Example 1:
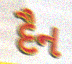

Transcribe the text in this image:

દૈન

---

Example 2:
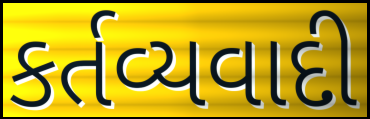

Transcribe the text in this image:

કર્તવ્યવાદી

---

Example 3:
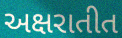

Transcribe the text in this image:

અક્ષરાતીત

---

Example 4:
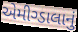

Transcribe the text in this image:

એમીગ્ડાલાનું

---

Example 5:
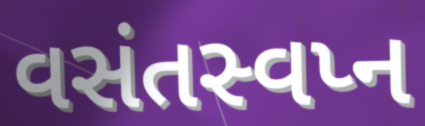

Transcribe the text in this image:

વસંતસ્વપ્ન